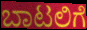
ಬಾಟಲಿಗೆ